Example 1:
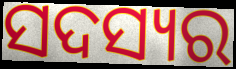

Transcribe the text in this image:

ସଦସ୍ୟର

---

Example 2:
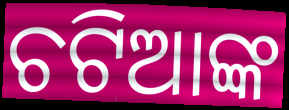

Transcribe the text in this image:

ଚଟିଆଙ୍କ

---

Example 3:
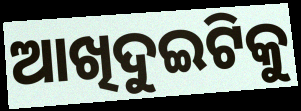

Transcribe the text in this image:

ଆଖିଦୁଇଟିକୁ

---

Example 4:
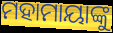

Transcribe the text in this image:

ମହାମାୟାଙ୍କୁ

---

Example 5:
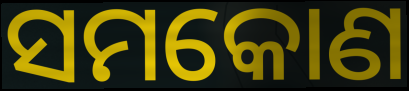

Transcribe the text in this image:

ସମକୋଣ